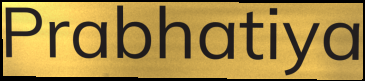
Prabhatiya